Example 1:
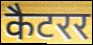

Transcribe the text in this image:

कैटरर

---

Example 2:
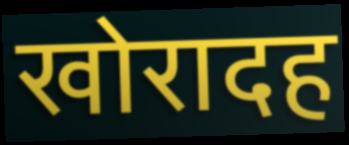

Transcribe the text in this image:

खोरादह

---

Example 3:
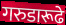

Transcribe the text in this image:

गरुडारूढे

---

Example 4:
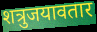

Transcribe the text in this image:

शत्रुजयावतार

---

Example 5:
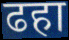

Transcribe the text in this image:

ढहा